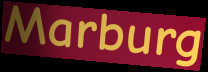
Marburg